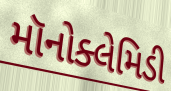
મૉનોક્લેમિડી